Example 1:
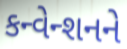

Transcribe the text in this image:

કન્વેન્શનને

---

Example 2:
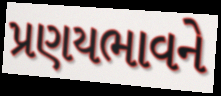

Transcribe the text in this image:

પ્રણયભાવને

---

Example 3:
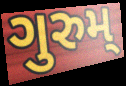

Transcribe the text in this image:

ગુરુમ્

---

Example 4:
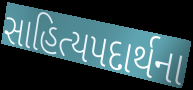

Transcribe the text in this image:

સાહિત્યપદાર્થના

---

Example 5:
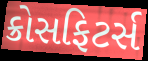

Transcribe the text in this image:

ક્રોસફિટર્સ